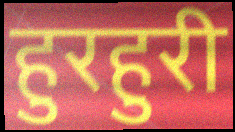
हुरहुरी